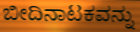
ಬೀದಿನಾಟಕವನ್ನು